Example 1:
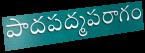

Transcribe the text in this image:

పాదపద్మపరాగం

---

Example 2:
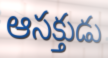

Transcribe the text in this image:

ఆసక్తుడు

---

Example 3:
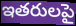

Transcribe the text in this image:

ఇతరులపై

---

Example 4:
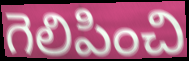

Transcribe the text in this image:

గెలిపించి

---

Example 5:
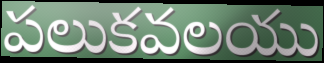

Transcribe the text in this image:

పలుకవలయు